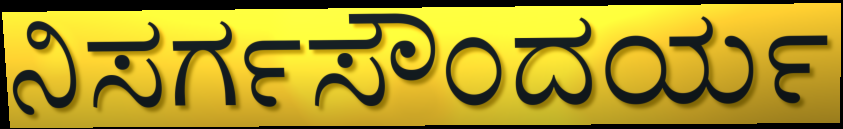
ನಿಸರ್ಗಸೌಂದರ್ಯ